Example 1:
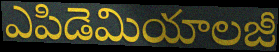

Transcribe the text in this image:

ఎపిడెమియాలజీ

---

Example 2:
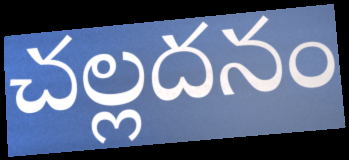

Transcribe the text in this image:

చల్లదనం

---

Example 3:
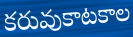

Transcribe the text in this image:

కరువుకాటకాల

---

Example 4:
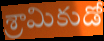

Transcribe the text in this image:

శ్రామికుడో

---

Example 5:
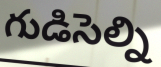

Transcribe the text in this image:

గుడిసెల్ని